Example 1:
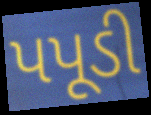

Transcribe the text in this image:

પપૂડી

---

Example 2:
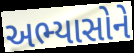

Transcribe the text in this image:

અભ્યાસોને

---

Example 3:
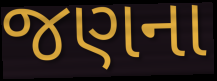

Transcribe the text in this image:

જણના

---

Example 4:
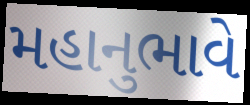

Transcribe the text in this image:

મહાનુભાવે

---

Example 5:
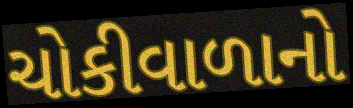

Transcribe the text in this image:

ચોકીવાળાનો